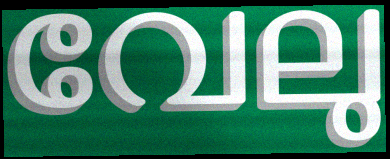
വേലു